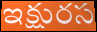
ఇక్షురస